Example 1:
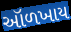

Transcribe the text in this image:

ઑળખાય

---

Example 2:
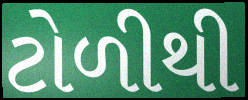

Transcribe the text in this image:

ટોળીથી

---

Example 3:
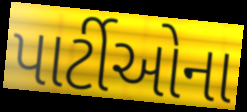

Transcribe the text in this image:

પાર્ટીઓના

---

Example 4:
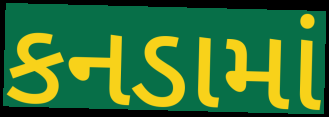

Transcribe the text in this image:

કનડામાં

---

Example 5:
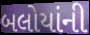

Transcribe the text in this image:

બલોયાંની